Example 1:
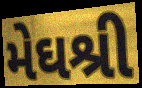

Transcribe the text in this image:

મેઘશ્રી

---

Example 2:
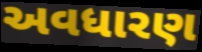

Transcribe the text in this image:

અવધારણ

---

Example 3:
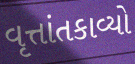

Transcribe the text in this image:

વૃત્તાંતકાવ્યો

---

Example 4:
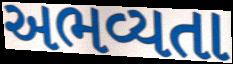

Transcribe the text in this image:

અભવ્યતા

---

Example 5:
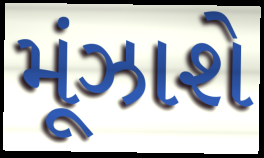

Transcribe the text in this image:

મૂંઝાશે